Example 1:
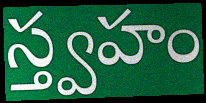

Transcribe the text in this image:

స్త్వహం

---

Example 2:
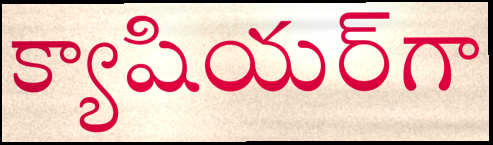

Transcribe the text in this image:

క్యాషియర్‌గా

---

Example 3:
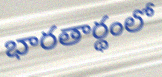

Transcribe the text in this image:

భారతార్థంలో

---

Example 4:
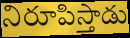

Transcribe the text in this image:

నిరూపిస్తాడు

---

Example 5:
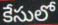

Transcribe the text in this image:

కేసులో